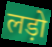
लड़ो